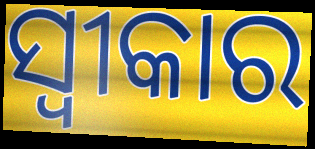
ସ୍ୱୀକାର